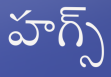
హగ్స్